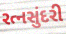
રત્નસુંદરી